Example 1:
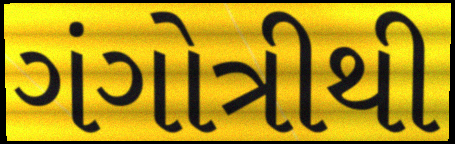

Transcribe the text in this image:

ગંગોત્રીથી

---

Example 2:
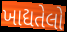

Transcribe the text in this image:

ખાદ્યતેલો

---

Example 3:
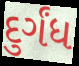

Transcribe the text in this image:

દુર્ગંધ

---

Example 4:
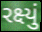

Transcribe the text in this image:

રક્ષ્યું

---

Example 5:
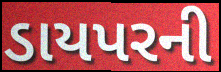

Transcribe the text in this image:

ડાયપરની